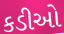
કડીઓ